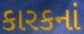
કારકનાં